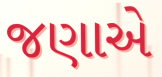
જણાએ